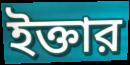
ইক্তার